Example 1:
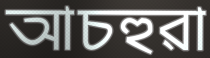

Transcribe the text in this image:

আচহুৱা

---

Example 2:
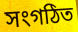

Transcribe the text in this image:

সংগঠিত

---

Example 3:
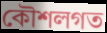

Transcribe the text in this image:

কৌশলগত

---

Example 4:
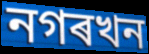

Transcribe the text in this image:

নগৰখন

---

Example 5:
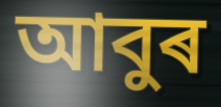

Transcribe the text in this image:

আবুৰ